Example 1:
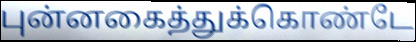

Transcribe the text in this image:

புன்னகைத்துக்கொண்டே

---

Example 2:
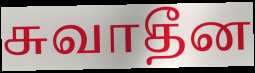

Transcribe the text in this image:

சுவாதீன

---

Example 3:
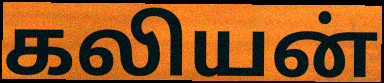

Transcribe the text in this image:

கலியன்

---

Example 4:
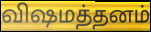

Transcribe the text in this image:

விஷமத்தனம்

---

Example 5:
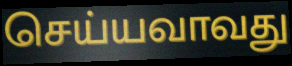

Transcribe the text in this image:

செய்யவாவது